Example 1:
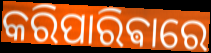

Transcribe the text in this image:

କରିପାରିଵାରେ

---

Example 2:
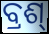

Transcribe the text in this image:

ବ୍ରଶ୍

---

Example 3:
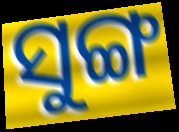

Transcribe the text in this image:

ସୁଙ୍ଗ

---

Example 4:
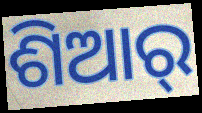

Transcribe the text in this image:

ଶିଆର୍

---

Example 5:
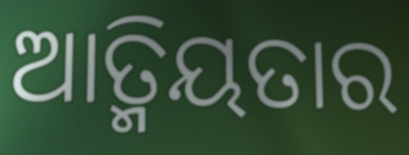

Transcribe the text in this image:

ଆତ୍ମିୟତାର